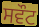
ਸਵੌਟ